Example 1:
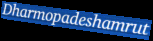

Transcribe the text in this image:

Dharmopadeshamrut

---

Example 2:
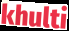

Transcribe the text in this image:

khulti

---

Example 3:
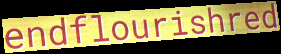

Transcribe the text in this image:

endflourishred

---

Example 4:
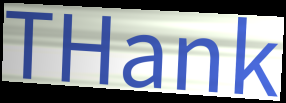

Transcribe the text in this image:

THank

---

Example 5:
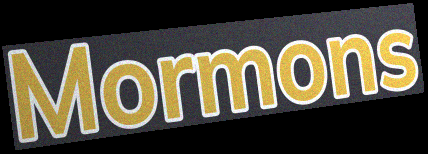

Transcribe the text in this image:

Mormons